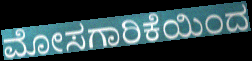
ಮೋಸಗಾರಿಕೆಯಿಂದ